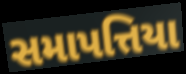
સમાપત્તિયા